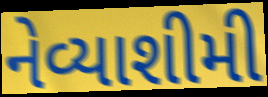
નેવ્યાશીમી